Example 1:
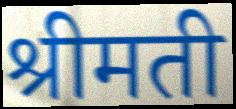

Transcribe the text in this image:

श्रीमती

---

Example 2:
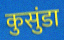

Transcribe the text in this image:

कुसुंडा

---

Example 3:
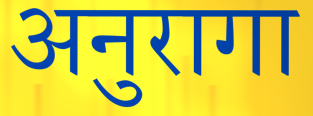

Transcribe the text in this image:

अनुरागा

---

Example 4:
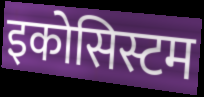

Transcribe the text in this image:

इकोसिस्टम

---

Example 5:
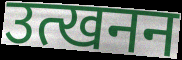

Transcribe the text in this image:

उत्‍खनन